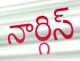
నార్గిస్